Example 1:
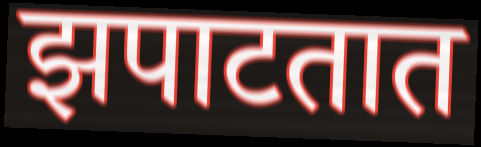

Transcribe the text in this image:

झपाटतात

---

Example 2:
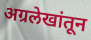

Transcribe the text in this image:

अग्रलेखांतून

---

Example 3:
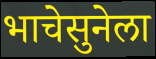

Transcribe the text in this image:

भाचेसुनेला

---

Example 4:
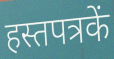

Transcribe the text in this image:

हस्तपत्रकें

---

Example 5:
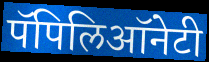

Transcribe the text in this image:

पॅपिलिऑनेटी